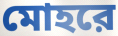
মোহরে